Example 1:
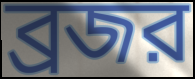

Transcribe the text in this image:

ব্রজর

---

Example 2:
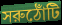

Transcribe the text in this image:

সরুঠোঁটি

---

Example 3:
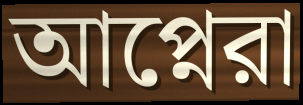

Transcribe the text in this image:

আপ্নেরা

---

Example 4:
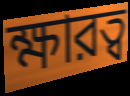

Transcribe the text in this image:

ক্ষারত্ব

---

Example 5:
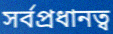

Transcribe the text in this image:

সর্বপ্রধানত্ব